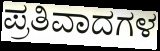
ಪ್ರತಿವಾದಗಳ